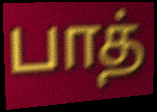
பாத்